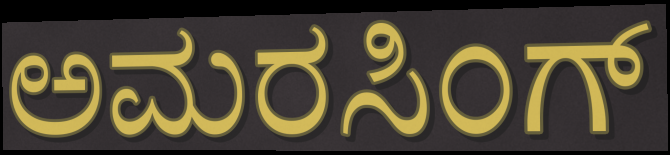
ಅಮರಸಿಂಗ್